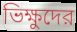
ভিক্ষুদের